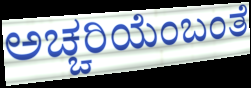
ಅಚ್ಚರಿಯೆಂಬಂತೆ